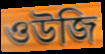
ওউজি